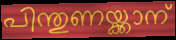
പിന്തുണയ്ക്കാന്